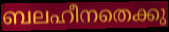
ബലഹീനതെക്കു